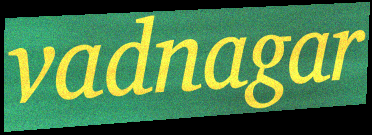
vadnagar